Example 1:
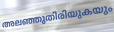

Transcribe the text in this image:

അലഞ്ഞുതിരിയുകയും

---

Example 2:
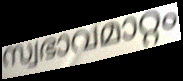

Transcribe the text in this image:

സ്വഭാവമാറ്റം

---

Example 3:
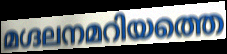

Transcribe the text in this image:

മഗ്ദലനമറിയത്തെ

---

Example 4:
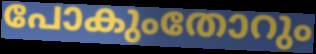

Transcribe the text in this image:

പോകുംതോറും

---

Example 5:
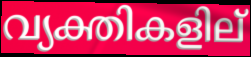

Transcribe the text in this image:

വ്യക്തികളില്